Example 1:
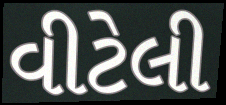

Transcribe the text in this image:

વીટેલી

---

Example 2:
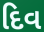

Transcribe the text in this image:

દિવ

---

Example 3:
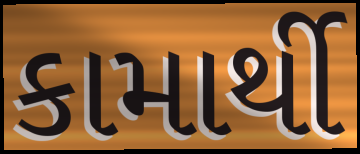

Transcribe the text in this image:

કામાર્થી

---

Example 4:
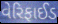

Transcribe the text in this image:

વેરિફાઈડ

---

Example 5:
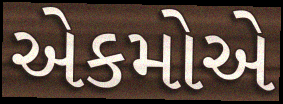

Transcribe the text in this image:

એકમોએ